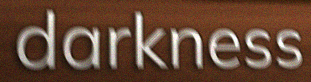
darkness